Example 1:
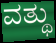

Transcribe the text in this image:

ವತ್ಥು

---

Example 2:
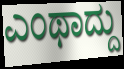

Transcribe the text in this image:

ಎಂಥಾದ್ದು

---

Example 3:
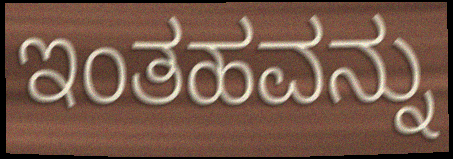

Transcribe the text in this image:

ಇಂತಹವನ್ನು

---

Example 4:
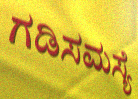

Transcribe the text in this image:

ಗಡಿಸಮಸ್ಯೆ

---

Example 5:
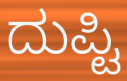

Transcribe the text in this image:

ದುಪ್ಟಿ